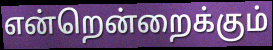
என்றென்றைக்கும்